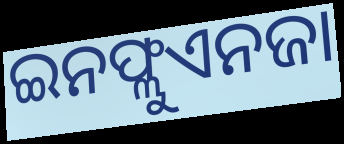
ଇନଫ୍ଲୁଏନଜା